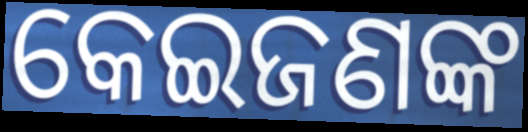
କେଇଜଣଙ୍କ